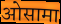
ओसामा